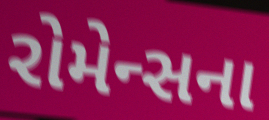
રોમેન્સના